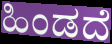
ಹಿಂಡದೆ